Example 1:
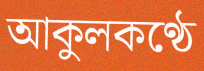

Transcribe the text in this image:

আকুলকণ্ঠে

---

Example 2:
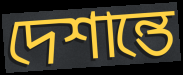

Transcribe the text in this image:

দেশান্তে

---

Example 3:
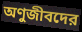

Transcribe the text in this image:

অণুজীবদের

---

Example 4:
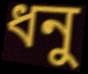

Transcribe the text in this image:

ধনু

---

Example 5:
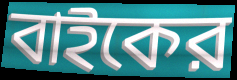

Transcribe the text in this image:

বাইকের